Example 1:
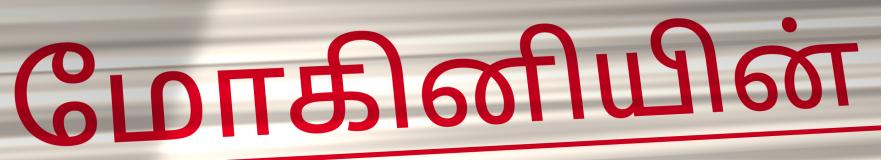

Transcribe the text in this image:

மோகினியின்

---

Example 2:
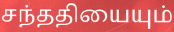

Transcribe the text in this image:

சந்ததியையும்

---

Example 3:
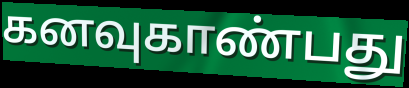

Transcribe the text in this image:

கனவுகாண்பது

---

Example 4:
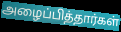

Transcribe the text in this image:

அழைப்பித்தார்கள்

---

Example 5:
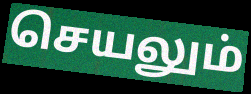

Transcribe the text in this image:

செயலும்